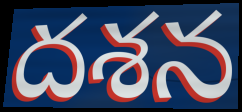
దశన